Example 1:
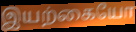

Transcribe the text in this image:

இயற்கையோ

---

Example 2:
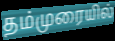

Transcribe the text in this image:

தம்முரையில்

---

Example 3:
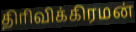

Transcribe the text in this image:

திரிவிக்கிரமன்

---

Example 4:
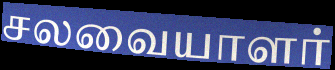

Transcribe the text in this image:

சலவையாளர்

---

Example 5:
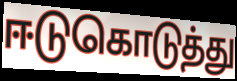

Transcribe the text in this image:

ஈடுகொடுத்து